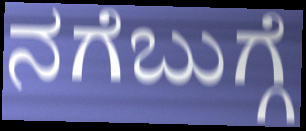
ನಗೆಬುಗ್ಗೆ